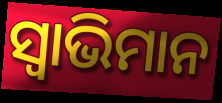
ସ୍ୱାଭିମାନ